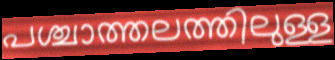
പശ്ചാത്തലത്തിലുള്ള